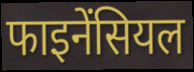
फाइनेंसियल